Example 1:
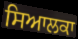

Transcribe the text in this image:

ਸਿਆਲਕਾ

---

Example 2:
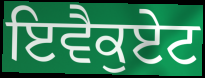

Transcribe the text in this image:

ਇਵੈਕੁਏਟ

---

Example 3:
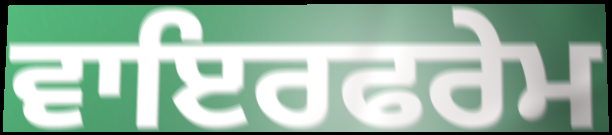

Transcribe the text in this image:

ਵਾਇਰਫਰੇਮ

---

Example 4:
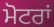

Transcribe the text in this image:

ਮੋਟਰਾਂ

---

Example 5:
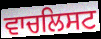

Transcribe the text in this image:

ਵਾਚਲਿਸਟ